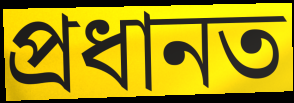
প্ৰধানত